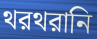
থরথরানি